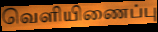
வெளியிணைப்பு